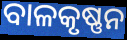
ବାଳକୃଷ୍ଣନ